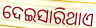
ଦେଇସାରିଥାଏ